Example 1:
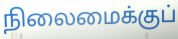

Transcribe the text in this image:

நிலைமைக்குப்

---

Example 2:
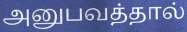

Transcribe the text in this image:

அனுபவத்தால்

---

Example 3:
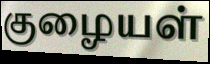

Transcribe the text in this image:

குழையள்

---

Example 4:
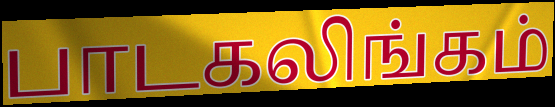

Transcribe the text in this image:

பாடகலிங்கம்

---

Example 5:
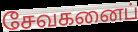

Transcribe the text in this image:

சேவகனைப்